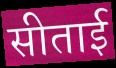
सीताई